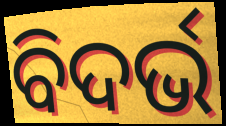
ବିଦର୍ଭ